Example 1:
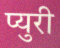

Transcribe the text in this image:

प्युरी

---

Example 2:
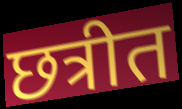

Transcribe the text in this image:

छत्रीत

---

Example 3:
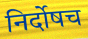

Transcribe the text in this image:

निर्दोषच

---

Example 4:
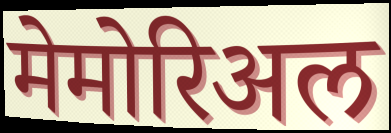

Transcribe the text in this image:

मेमोरिअल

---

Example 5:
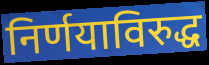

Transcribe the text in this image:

निर्णयाविरुद्ध